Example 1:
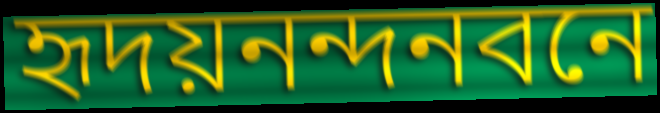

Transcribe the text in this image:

হৃদয়নন্দনবনে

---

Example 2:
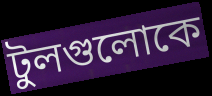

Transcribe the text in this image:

টুলগুলোকে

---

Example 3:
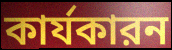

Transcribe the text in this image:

কার্যকারন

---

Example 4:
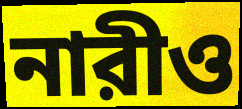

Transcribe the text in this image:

নারীও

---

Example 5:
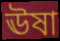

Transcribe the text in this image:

ঊষা